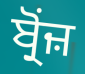
ਬ੍ਰੋਂਜ਼